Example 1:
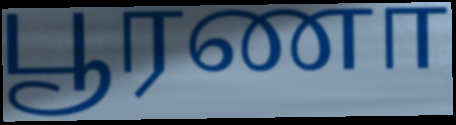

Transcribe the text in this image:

பூரணா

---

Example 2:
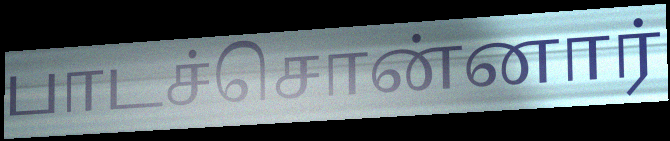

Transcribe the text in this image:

பாடச்சொன்னார்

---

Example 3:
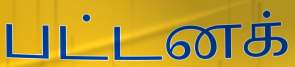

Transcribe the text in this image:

பட்டனக்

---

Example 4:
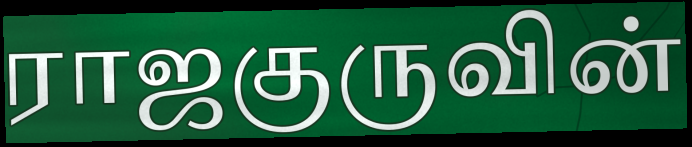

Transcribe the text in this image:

ராஜகுருவின்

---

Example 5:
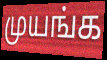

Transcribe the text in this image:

முயங்க